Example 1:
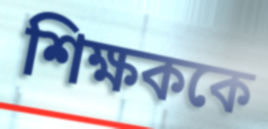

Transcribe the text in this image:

শিক্ষককে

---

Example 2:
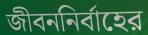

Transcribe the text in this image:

জীবননির্বাহের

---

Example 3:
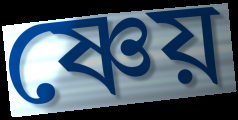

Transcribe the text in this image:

ষ্ণেয়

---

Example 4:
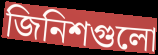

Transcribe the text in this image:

জিনিশগুলো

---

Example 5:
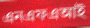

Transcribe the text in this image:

এনএফএআই